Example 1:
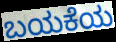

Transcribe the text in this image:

ಬಯಕೆಯ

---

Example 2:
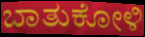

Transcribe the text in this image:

ಬಾತುಕೋಳಿ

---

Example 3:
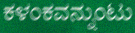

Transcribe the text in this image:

ಕಳಂಕವನ್ನುಂಟು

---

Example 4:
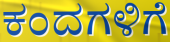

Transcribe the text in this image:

ಕಂದಗಳಿಗೆ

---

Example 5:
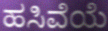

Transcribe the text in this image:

ಹಸಿವೆಯೆ